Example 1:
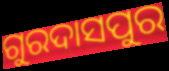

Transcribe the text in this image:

ଗୁରଦାସପୁର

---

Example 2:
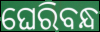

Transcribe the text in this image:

ଘେରିବନ୍ଧ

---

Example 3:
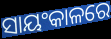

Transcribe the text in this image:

ସାୟଂକାଳରେ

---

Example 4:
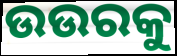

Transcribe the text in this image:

ଉଉରକୁ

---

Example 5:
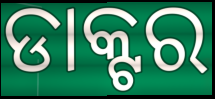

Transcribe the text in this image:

ଡାକ୍ଟର